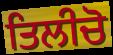
ਤਿਲੀਚੋ